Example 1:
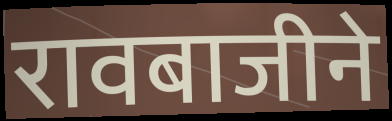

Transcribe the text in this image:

रावबाजीने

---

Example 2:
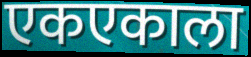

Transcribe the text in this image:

एकएकाला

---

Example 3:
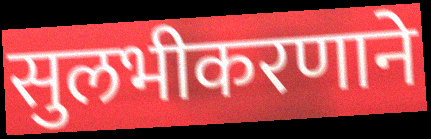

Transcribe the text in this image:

सुलभीकरणाने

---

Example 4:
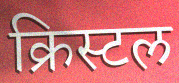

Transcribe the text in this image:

क्रिस्टल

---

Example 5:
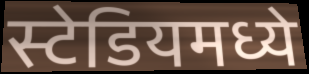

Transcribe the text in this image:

स्टेडियमध्ये